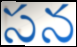
సన